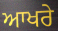
ਆਖਰੇ